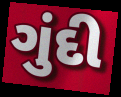
ગુંદી